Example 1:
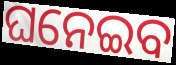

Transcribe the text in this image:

ଘନେଇବ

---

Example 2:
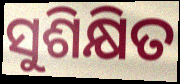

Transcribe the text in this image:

ସୁଶିକ୍ଷିତ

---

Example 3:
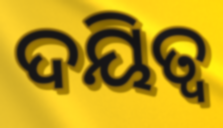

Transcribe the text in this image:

ଦୟିତ୍ୱ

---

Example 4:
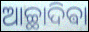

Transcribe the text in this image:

ଆଚ୍ଛାଦିଵା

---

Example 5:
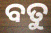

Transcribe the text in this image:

ବତୁ